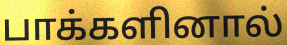
பாக்களினால்